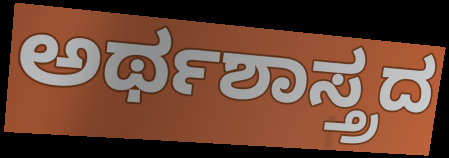
ಅರ್ಥಶಾಸ್ತ್ರದ